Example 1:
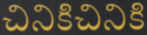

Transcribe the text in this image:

చినికిచినికి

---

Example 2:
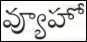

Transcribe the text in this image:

వ్యూహో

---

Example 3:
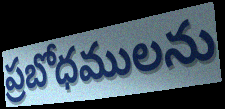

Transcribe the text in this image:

ప్రబోధములను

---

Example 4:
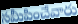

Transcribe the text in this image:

సమీపించేవారు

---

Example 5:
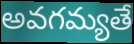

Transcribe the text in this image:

అవగమ్యతే